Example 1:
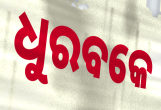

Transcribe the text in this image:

ଧୁରବକେ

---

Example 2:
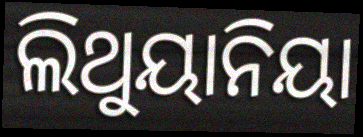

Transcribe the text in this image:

ଲିଥୁୟାନିୟା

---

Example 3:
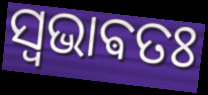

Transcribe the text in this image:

ସ୍ଵଭାଵତଃ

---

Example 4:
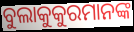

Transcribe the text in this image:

ବୁଲାକୁକୁରମାନଙ୍କ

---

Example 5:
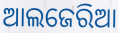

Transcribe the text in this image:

ଆଲଜେରିଆ